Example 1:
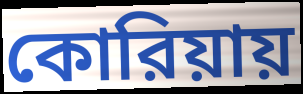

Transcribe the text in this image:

কোরিয়ায়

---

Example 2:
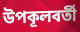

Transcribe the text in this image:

উপকূলবর্তী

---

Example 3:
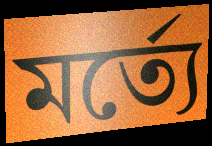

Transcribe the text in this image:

মর্ত্যে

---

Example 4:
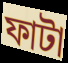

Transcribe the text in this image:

ফাটা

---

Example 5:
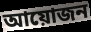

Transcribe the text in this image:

আয়োজন